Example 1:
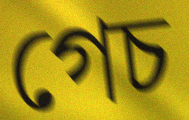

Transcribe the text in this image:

গেচ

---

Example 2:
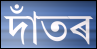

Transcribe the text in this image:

দাঁতৰ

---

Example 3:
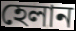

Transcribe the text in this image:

হেলান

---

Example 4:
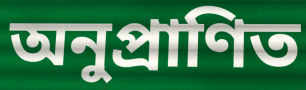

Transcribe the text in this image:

অনুপ্ৰাণিত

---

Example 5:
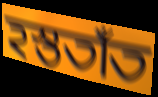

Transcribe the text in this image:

হস্ততাঁত